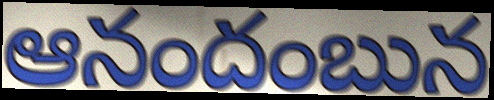
ఆనందంబున